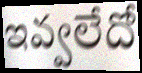
ఇవ్వలేదో